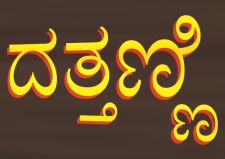
ದತ್ತಣ್ಣಿ